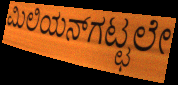
ಮಿಲಿಯನ್‌ಗಟ್ಟಲೇ